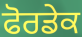
ਫੋਰਡੇਕ